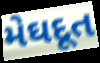
મેઘદૂત